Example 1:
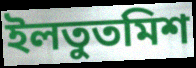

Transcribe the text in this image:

ইলতুতমিশ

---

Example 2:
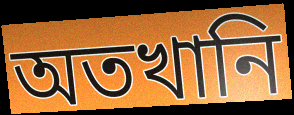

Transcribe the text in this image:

অতখানি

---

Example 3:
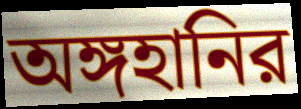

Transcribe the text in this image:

অঙ্গহানির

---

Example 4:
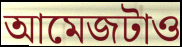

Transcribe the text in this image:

আমেজটাও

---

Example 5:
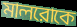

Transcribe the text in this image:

মালরোকে